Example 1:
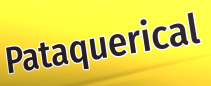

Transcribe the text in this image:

Pataquerical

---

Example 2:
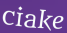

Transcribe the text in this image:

ciake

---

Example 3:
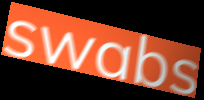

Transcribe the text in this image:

swabs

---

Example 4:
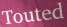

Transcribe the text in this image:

Touted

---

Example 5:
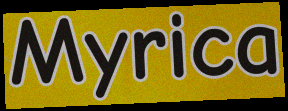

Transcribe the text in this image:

Myrica